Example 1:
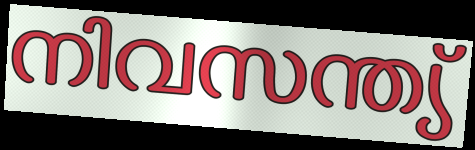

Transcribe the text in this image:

നിവസന്ത്യ്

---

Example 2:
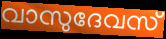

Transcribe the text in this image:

വാസുദേവസ്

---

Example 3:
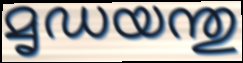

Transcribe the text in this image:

മൃഡയന്തു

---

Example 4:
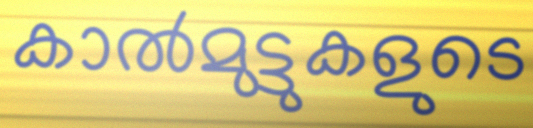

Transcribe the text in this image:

കാൽമുട്ടുകളുടെ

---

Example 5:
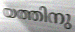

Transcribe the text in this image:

യത്തിനു